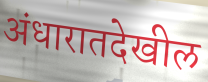
अंधारातदेखील